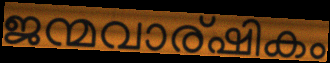
ജന്മവാര്ഷികം